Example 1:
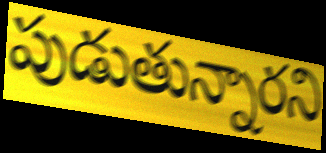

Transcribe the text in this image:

పుడుతున్నారని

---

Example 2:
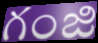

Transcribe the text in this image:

గంజి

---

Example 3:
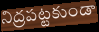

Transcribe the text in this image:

నిద్రపట్టకుండా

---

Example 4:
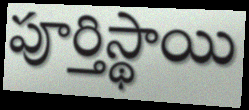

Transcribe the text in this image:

పూర్తిస్థాయి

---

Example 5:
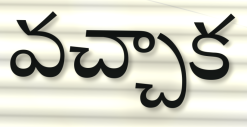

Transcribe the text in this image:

వచ్చాక